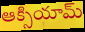
ఆక్సియామ్